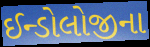
ઈન્ડોલોજીના